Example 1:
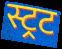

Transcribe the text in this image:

स्ट्रट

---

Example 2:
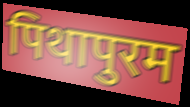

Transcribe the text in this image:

पिथापुरम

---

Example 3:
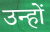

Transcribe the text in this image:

उन्हों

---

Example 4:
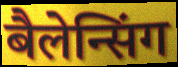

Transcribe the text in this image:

बैलेन्सिंग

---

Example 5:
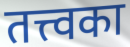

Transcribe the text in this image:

तत्त्वका